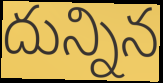
దున్నిన